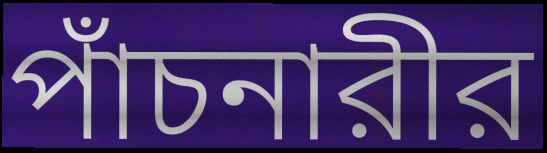
পাঁচনারীর